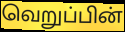
வெறுப்பின்